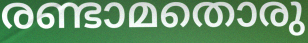
രണ്ടാമതൊരു